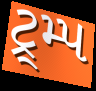
ટ્ર્મ્પ